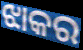
ଝାକର